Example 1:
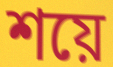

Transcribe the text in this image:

শয়ে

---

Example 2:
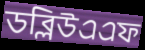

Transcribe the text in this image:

ডব্লিউএএফ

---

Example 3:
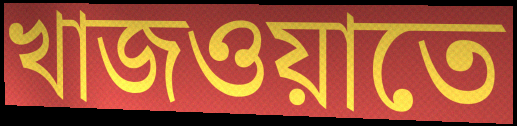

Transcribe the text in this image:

খাজওয়াতে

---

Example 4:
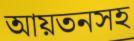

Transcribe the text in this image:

আয়তনসহ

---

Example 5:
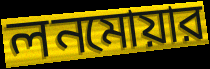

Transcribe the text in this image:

লনমোয়ার